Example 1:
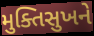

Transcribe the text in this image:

મુક્તિસુખને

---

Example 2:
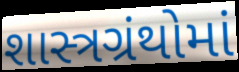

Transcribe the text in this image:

શાસ્ત્રગ્રંથોમાં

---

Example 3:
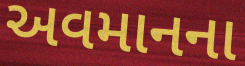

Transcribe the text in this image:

અવમાનના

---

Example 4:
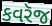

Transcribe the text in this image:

કવરૅજ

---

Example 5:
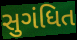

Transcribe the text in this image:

સુગંધિત